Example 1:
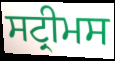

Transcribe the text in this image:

ਸਟ੍ਰੀਮਸ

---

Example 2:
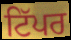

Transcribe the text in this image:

ਟਿੱਪਰ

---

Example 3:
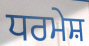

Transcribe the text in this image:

ਧਰਮੇਸ਼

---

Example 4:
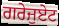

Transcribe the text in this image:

ਗਰੇਜੁਏਟ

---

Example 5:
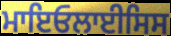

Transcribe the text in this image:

ਮਾਇਓਲਾਈਸਿਸ